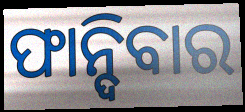
ଫାନ୍ଦିବାର